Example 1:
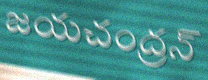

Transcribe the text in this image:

జయచంద్రన్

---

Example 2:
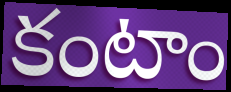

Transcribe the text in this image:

కంటాం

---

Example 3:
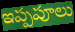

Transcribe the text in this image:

ఇప్పపూలు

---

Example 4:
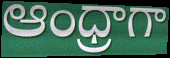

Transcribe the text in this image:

ఆంధ్రాగా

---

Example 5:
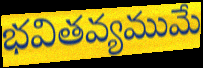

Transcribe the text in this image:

భవితవ్యముమే